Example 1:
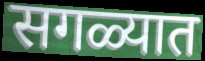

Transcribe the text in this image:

सगळ्यात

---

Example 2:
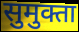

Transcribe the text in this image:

सुमुक्ता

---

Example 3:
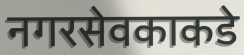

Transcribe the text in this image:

नगरसेवकाकडे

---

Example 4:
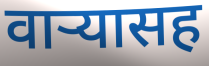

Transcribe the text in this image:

वार्‍यासह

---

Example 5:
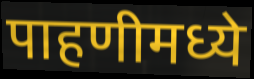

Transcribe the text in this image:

पाहणीमध्ये